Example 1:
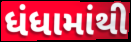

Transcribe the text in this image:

ધંધામાંથી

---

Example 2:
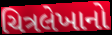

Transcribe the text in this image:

ચિત્રલેખાનો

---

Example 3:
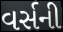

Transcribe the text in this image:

વર્સની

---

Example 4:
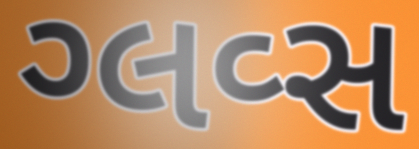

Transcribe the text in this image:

ગ્લવ્સ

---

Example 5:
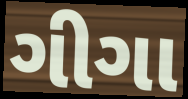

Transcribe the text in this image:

ગીગા